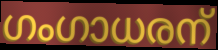
ഗംഗാധരന്